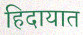
हिदायात